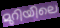
മുറിയിലെ